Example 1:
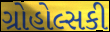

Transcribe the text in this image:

ગ્રોહોલ્સકી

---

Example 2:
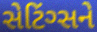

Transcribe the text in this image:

સેટિંગ્સને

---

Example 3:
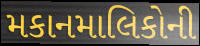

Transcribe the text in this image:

મકાનમાલિકોની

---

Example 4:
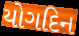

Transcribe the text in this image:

યોગદિન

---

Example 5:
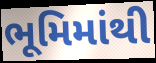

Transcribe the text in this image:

ભૂમિમાંથી